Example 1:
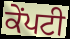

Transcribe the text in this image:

ਕੇਂਪਟੀ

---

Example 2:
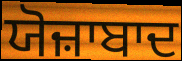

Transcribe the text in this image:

ਯੋਜ਼ਾਬਾਦ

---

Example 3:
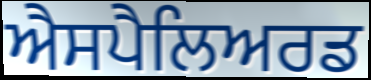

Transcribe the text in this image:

ਐਸਪੈਲਿਅਰਡ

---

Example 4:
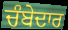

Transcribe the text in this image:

ਚੰਬੇਦਾਰ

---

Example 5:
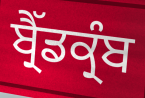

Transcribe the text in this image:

ਬ੍ਰੈੱਡਕ੍ਰੰਬ